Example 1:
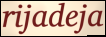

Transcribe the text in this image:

rijadeja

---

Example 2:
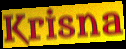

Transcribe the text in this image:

Krisna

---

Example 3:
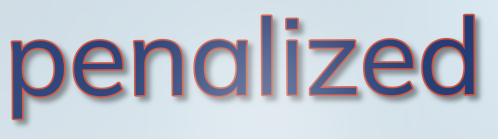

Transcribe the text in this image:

penalized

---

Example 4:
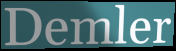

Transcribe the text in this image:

Demler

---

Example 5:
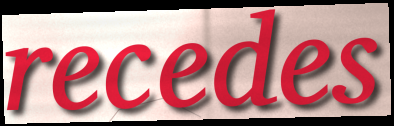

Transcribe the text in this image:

recedes